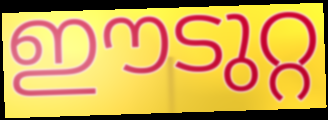
ഈടുറ്റ